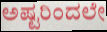
ಅಷ್ಟರಿಂದಲೇ